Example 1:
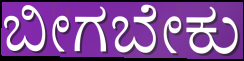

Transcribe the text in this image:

ಬೀಗಬೇಕು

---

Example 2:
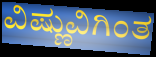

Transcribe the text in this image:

ವಿಷ್ಣುವಿಗಿಂತ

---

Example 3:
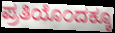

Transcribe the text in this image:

ಪ್ರತಿಯೊಂದಕ್ಕೂ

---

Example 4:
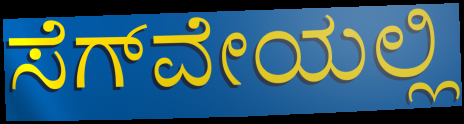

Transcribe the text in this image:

ಸೆಗ್‌ವೇಯಲ್ಲಿ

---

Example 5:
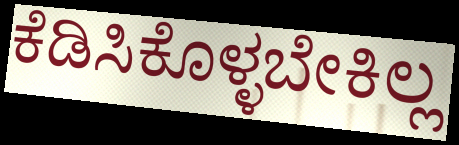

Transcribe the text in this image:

ಕೆಡಿಸಿಕೊಳ್ಳಬೇಕಿಲ್ಲ